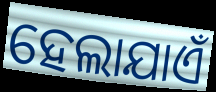
ହେଲାଯାଏଁ